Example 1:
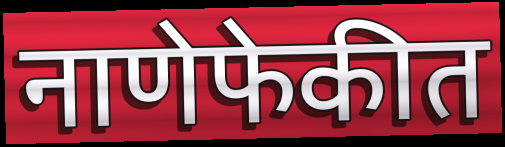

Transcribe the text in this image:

नाणेफेकीत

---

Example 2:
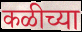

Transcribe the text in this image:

कळीच्या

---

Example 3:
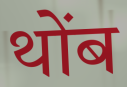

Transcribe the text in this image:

थोंब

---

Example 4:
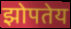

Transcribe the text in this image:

झोपतेय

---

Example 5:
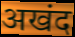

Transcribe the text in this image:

अखंद